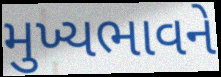
મુખ્યભાવને